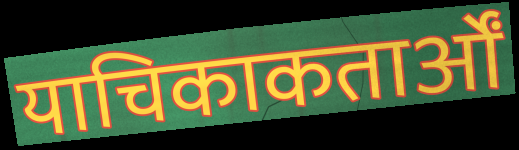
याचिकाकतार्ओं